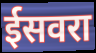
ईसवरा